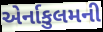
એર્નાકુલમની